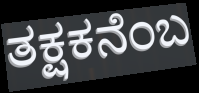
ತಕ್ಷಕನೆಂಬ